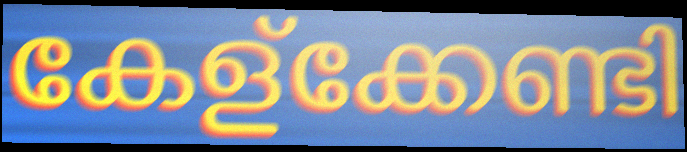
കേള്ക്കേണ്ടി